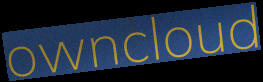
owncloud